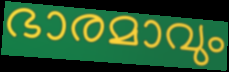
ഭാരമാവും